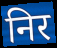
निर